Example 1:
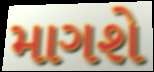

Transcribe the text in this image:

માગશે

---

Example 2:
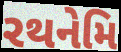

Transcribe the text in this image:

રથનેમિ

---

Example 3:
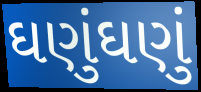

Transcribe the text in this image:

ઘણુંઘણું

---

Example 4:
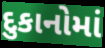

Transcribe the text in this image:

દુકાનોમાં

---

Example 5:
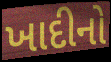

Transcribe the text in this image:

ખાદીનો